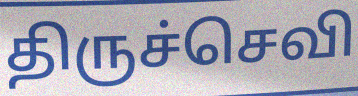
திருச்செவி